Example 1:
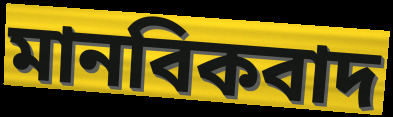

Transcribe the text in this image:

মানবিকবাদ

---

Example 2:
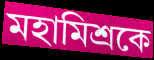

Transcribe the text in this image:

মহামিশ্রকে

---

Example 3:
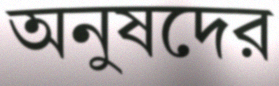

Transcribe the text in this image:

অনুষদের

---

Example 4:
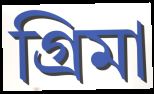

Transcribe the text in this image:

গ্রিমা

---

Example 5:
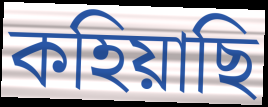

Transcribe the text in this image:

কহিয়াছি